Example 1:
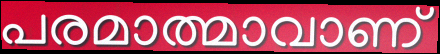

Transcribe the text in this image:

പരമാത്മാവാണ്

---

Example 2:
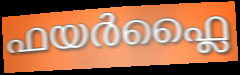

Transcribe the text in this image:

ഫയർഫ്ലൈ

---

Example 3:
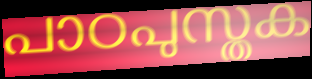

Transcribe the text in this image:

പാഠപുസ്തക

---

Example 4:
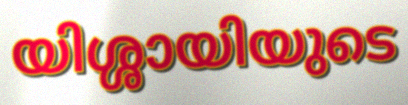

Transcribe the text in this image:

യിശ്ശായിയുടെ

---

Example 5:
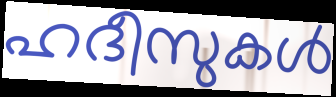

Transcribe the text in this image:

ഹദീസുകൾ